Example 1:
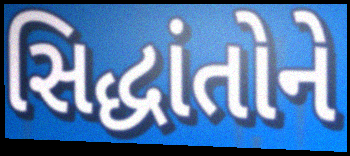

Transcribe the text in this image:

સિદ્ધાંતોને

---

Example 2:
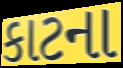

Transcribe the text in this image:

કાટના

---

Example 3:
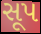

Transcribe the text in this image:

સૂપ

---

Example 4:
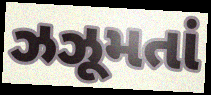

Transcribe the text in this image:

ઝઝૂમતાં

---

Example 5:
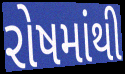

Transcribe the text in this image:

રોષમાંથી